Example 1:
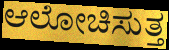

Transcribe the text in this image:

ಆಲೋಚಿಸುತ್ತ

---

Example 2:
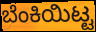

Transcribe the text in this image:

ಬೆಂಕಿಯಿಟ್ಟ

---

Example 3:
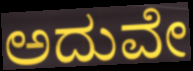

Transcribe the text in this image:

ಅದುವೇ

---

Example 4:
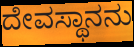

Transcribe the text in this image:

ದೇವಸ್ಥಾನನು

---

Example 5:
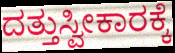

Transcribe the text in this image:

ದತ್ತುಸ್ವೀಕಾರಕ್ಕೆ